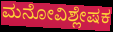
ಮನೋವಿಶ್ಲೇಷಕ